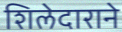
शिलेदाराने